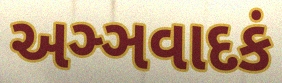
અઞ્ઞવાદકં